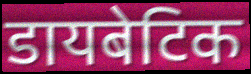
डायबेटिक